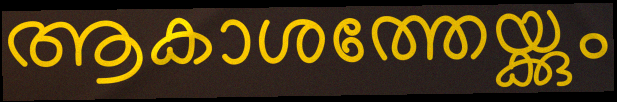
ആകാശത്തേയ്ക്കും